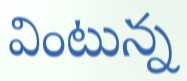
వింటున్న